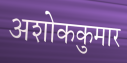
अशोककुमार